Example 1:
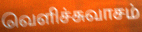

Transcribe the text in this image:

வெளிச்சுவாசம்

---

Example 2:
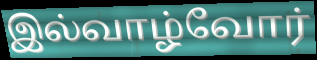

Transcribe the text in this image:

இல்வாழ்வோர்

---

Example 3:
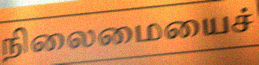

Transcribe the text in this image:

நிலைமையைச்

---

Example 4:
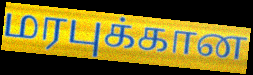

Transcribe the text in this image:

மரபுக்கான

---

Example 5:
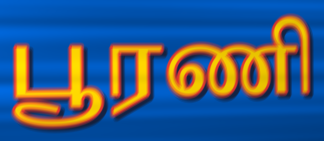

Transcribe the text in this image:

பூரணி